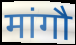
मांगौ